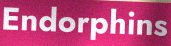
Endorphins